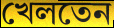
খেলতেন